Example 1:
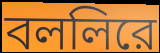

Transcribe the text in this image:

বললিরে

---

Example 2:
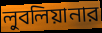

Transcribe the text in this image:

লুবলিয়ানার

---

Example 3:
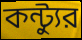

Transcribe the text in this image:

কন্ট্যুর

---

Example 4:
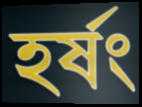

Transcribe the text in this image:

হর্ষং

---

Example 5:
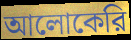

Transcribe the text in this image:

আলোকেরি